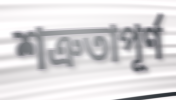
শত্রুতাপূর্ণ